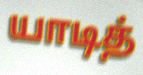
யாடித்